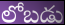
లోబడు